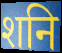
शनि